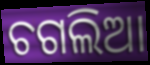
ଚଗଲିଆ